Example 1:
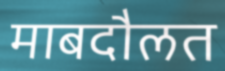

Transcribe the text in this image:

माबदौलत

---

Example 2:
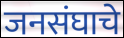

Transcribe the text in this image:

जनसंघाचे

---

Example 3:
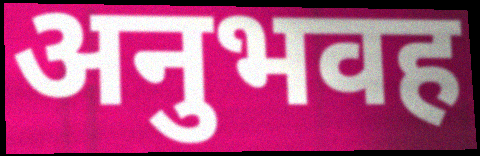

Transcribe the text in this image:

अनुभवह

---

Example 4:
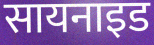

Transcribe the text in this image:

सायनाइड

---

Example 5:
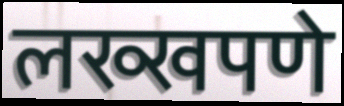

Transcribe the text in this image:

लख्खपणे